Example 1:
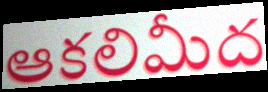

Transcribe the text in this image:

ఆకలిమీద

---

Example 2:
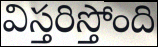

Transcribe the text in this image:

విస్తరిస్తోంది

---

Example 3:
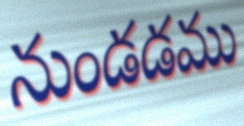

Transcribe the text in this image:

నుండడము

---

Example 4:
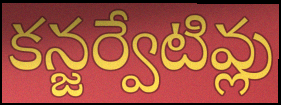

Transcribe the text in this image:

కన్జర్వేటివ్లు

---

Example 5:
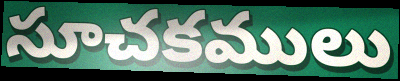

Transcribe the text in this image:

సూచకములు